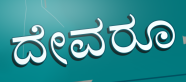
ದೇವರೂ